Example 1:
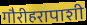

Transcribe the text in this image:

गौरीहरापाशी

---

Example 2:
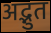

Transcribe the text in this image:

अद्भुत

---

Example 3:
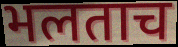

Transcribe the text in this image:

भलताच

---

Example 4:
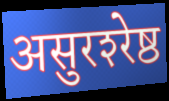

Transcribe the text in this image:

असुरश्रेष्ठ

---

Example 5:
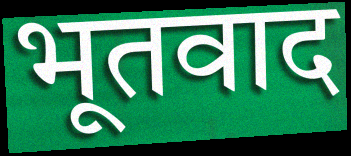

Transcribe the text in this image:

भूतवाद